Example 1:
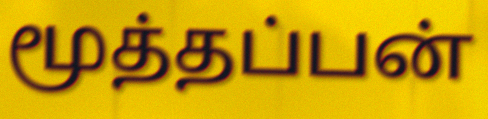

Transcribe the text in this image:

மூத்தப்பன்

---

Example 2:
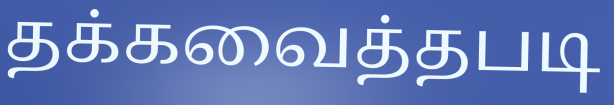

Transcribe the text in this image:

தக்கவைத்தபடி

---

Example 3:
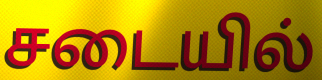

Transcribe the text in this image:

சடையில்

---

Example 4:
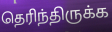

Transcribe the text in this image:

தெரிந்திருக்க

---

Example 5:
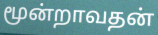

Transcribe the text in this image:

மூன்றாவதன்